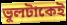
ভুলটাকেই